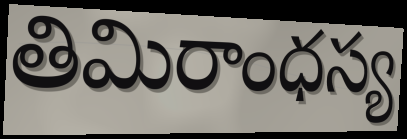
తిమిరాంధస్య